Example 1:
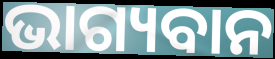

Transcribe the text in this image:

ଭାଗ୍ୟବାନ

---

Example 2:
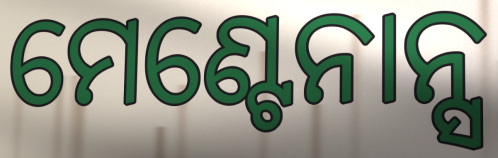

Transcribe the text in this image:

ମେଣ୍ଟେନାନ୍ସ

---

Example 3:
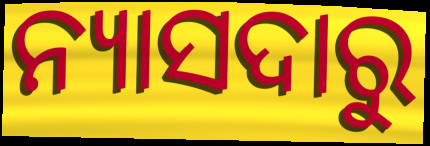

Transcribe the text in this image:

ନ୍ୟାସଦାରୁ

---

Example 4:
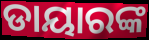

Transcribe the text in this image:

ଡାୟାରଙ୍କ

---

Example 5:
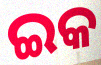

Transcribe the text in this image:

ଇକ